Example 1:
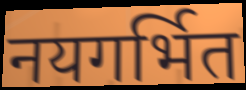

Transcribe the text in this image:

नयगर्भित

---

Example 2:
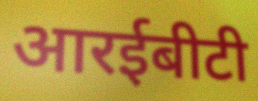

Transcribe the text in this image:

आरईबीटी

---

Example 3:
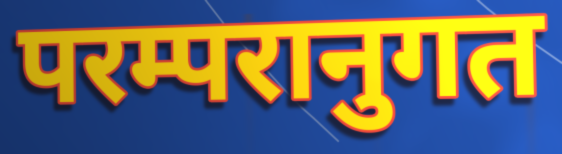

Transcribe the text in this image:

परम्परानुगत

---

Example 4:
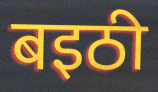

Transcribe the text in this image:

बइठी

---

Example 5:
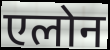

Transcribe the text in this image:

एलोन